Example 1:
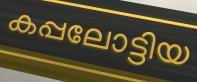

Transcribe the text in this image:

കപ്പലോട്ടിയ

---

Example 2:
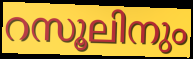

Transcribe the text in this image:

റസൂലിനും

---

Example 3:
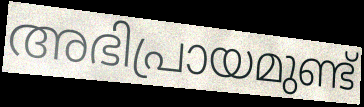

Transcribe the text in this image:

അഭിപ്രായമുണ്ട്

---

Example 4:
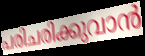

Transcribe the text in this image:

പരിചരിക്കുവാൻ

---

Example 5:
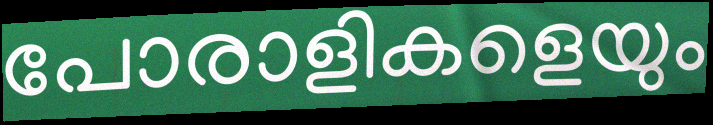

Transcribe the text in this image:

പോരാളികളെയും